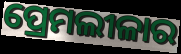
ପ୍ରେମଲୀଳାର